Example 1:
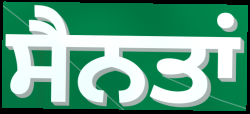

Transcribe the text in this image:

ਸੈਨਤਾਂ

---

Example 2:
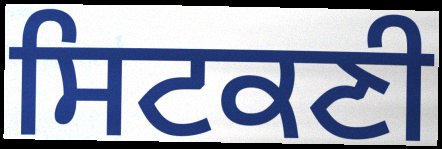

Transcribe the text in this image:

ਸਿਟਕਣੀ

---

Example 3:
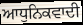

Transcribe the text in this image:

ਆਧੁਨਿਕਵਾਦੀ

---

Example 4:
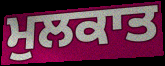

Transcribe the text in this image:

ਮੁਲਕਾਤ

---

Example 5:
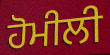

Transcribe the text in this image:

ਹੋਮੀਲੀ